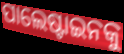
ପାଲେଷ୍ଟାଇନକୁ